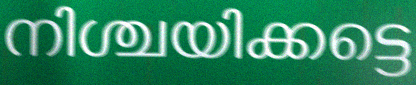
നിശ്ചയിക്കട്ടെ